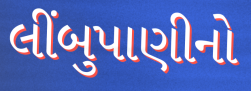
લીંબુપાણીનો